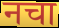
नचा